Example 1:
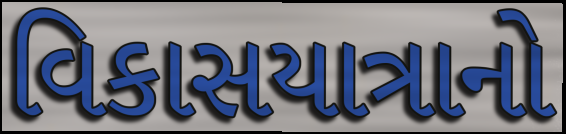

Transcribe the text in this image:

વિકાસયાત્રાનો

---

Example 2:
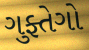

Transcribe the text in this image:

ગુફ્તેગો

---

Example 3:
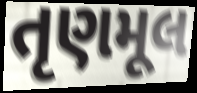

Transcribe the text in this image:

તૃણમૂલ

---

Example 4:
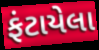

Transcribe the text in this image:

ફંટાયેલા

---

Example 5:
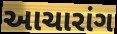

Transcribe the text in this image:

આચારાંગ